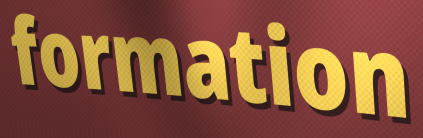
formation